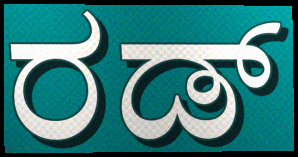
ರಡ್